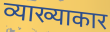
व्याख्याकार